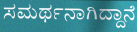
ಸಮರ್ಥನಾಗಿದ್ದಾನೆ